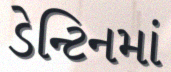
ડેન્ટિનમાં